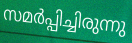
സമർപ്പിച്ചിരുന്നു